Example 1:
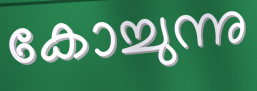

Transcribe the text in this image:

കോച്ചുന്നു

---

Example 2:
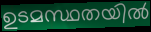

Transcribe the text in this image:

ഉടമസ്ഥതയിൽ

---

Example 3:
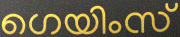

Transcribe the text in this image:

ഗെയിംസ്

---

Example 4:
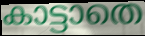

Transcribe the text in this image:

കാട്ടാതെ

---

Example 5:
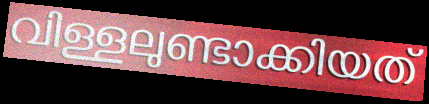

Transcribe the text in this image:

വിള്ളലുണ്ടാക്കിയത്